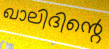
ഖാലിദിന്റെ